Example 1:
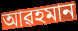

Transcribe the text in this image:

আৱহমান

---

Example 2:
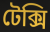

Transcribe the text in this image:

টেক্সি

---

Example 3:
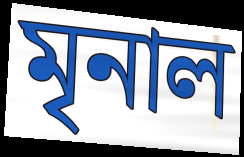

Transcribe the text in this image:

মৃনাল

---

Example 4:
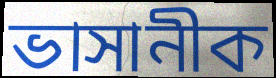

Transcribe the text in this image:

ভাসানীক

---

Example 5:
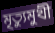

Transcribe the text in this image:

মৃত্যুমুখী